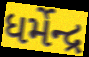
ધર્મેન્દ્ર